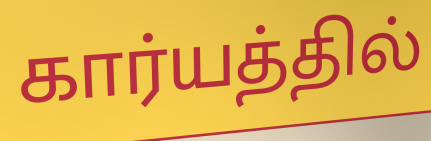
கார்யத்தில்